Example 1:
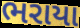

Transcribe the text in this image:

ભરાયા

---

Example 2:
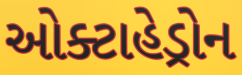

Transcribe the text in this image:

ઓક્ટાહેડ્રોન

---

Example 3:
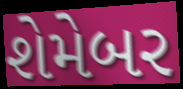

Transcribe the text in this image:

શેમેબર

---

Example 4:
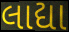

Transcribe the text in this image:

લાદ્યા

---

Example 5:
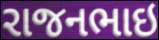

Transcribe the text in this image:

રાજનભાઇ